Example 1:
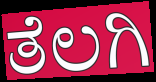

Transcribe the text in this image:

ತೆಲಗಿ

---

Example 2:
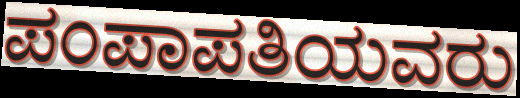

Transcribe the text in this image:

ಪಂಪಾಪತಿಯವರು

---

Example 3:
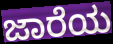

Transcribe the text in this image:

ಜಾರೆಯ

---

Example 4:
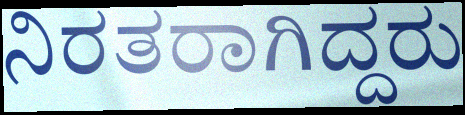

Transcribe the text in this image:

ನಿರತರಾಗಿದ್ದರು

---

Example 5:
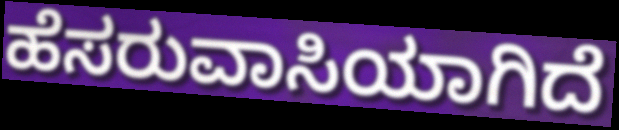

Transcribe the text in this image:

ಹೆಸರುವಾಸಿಯಾಗಿದೆ